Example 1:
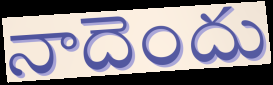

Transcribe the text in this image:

నాదెందు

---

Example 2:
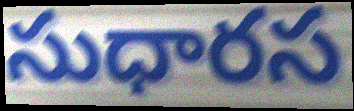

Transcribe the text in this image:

సుధారస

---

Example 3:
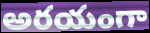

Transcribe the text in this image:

అరయంగా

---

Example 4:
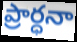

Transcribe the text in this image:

ప్రార్ధనా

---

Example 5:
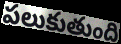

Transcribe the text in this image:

పలుకుతుంది